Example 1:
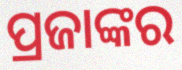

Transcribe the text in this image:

ପ୍ରଜାଙ୍କର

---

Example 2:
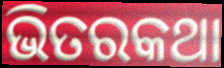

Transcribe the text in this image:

ଭିତରକଥା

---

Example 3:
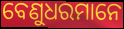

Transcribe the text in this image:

ବେଣୁଧରମାନେ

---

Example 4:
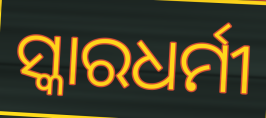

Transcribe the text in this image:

ସ୍କାରଧର୍ମୀ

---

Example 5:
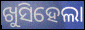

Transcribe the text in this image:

ଖୁସିହେଲା